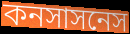
কনসাসনেস